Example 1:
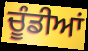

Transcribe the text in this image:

ਚੂੰਡੀਆਂ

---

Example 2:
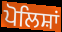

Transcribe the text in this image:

ਪੋਲਿਸ਼ਾਂ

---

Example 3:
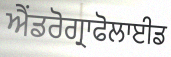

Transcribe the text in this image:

ਐਂਡਰੋਗ੍ਰਾਫੋਲਾਈਡ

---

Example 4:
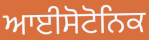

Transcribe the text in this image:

ਆਈਸੋਟੋਨਿਕ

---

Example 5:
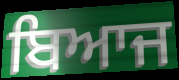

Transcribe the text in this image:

ਬਿਆਜ